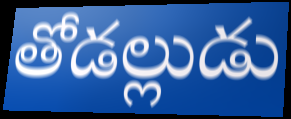
తోడల్లుడు